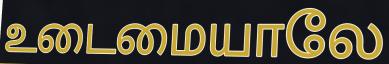
உடைமையாலே